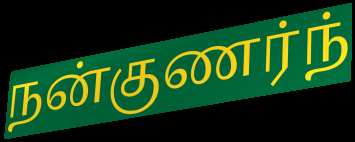
நன்குணர்ந்